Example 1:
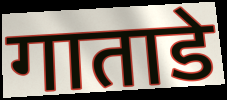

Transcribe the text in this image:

गाताडे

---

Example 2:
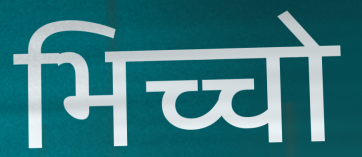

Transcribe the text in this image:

भिच्चो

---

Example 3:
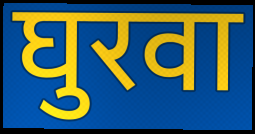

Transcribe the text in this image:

घुरवा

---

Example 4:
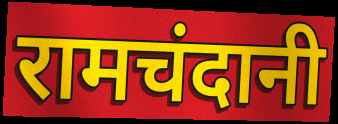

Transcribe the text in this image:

रामचंदानी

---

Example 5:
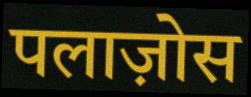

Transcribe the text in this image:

पलाज़ोस